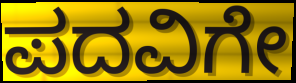
ಪದವಿಗೇ